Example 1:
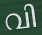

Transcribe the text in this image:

വി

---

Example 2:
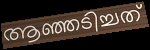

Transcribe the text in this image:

ആഞ്ഞടിച്ചത്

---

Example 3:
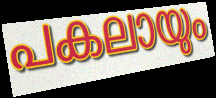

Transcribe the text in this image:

പകലായും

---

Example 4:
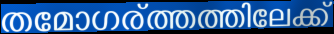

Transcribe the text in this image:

തമോഗര്ത്തത്തിലേക്ക്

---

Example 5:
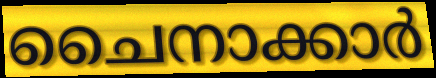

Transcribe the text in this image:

ചൈനാക്കാർ